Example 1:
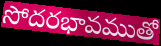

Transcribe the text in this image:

సోదరభావముతో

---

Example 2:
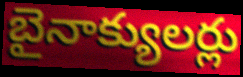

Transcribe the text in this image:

బైనాక్యులర్లు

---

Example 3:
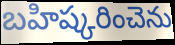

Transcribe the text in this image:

బహిష్కరించెను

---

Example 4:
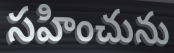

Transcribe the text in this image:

సహించును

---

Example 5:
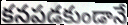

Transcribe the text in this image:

కనపడకుండానే